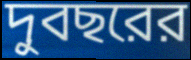
দুবছরের